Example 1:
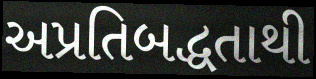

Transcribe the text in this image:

અપ્રતિબદ્ધતાથી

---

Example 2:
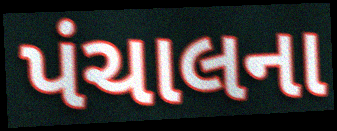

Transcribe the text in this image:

પંચાલના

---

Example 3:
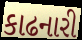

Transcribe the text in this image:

કાઢનારી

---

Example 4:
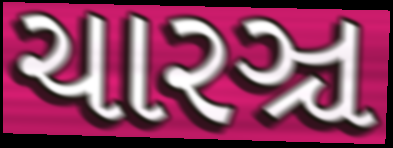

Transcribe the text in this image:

ચારઞ્ચ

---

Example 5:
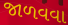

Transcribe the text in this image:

જાળવવા